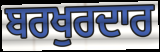
ਬਰਖੁਰਦਾਰ